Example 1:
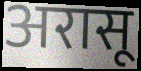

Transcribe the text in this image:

अरासू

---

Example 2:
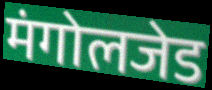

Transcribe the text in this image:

मंगोलजेड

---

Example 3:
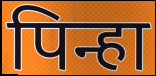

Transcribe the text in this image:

पिन्हा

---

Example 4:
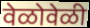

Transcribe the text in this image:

वेळोवेळी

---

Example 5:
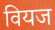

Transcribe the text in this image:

वियज